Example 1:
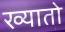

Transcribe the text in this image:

ख्यातो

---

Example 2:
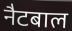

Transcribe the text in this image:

नैटबाल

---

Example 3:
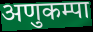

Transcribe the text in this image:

अणुकम्पा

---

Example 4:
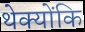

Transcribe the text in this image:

थेक्योंकि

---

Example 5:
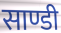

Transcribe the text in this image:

साण्डी